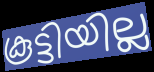
കൂട്ടിയില്ല